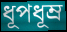
ধূপধূম্র